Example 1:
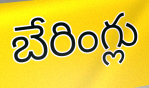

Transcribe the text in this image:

బేరింగ్లు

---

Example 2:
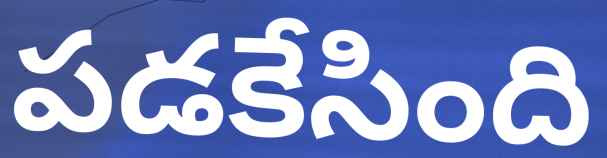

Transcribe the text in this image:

పడకేసింది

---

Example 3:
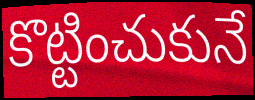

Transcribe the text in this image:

కొట్టించుకునే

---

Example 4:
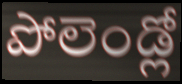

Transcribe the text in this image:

పోలెండ్లో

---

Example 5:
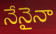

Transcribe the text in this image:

నేనైనా